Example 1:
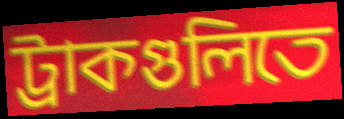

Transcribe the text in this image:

ট্রাকগুলিতে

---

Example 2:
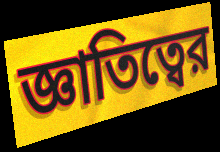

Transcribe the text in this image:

জ্ঞাতিত্বের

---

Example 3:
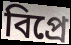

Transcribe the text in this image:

বিপ্রে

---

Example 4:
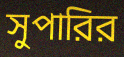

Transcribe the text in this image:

সুপারির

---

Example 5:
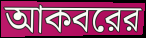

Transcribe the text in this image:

আকবরের